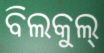
ବିଲକୁଲ୍